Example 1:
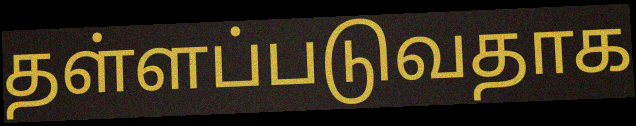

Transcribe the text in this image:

தள்ளப்படுவதாக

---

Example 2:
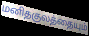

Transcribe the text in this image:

மனிதகுலத்தையும்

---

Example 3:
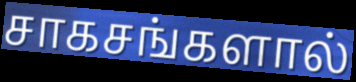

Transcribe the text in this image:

சாகசங்களால்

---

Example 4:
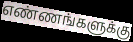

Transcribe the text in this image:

எண்ணங்களுக்கு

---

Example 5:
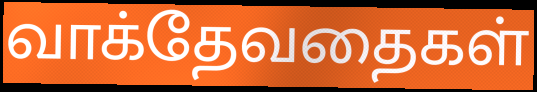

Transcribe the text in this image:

வாக்தேவதைகள்